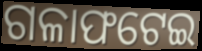
ଗଳାଫଟେଇ